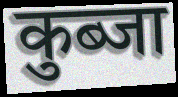
कुब्जा